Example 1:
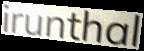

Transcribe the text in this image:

irunthal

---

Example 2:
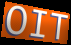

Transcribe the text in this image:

OIT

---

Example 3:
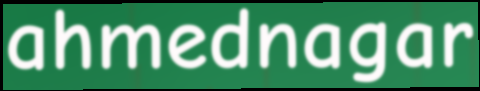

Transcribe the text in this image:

ahmednagar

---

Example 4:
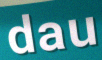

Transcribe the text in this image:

dau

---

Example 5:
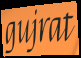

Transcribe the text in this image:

gujrat